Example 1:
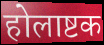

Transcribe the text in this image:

होलाष्टक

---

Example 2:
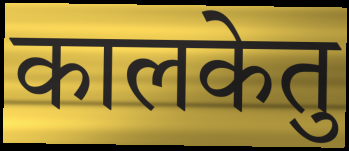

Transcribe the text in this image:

कालकेतु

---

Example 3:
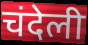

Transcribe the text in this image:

चंदेली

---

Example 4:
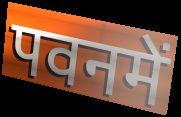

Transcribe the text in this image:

पवनमें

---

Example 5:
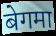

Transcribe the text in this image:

बेगमा